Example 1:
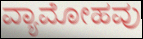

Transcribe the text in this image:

ವ್ಯಾಮೋಹವು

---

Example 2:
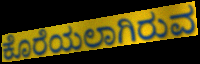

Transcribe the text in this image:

ಕೊರೆಯಲಾಗಿರುವ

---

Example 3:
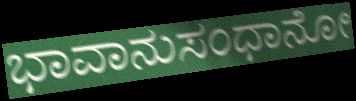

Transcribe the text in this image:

ಭಾವಾನುಸಂಧಾನೋ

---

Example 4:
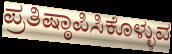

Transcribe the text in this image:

ಪ್ರತಿಷ್ಠಾಪಿಸಿಕೊಳ್ಳುವ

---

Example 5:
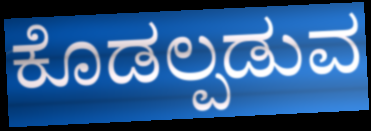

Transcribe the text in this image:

ಕೊಡಲ್ಪಡುವ